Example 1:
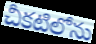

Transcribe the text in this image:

చీకటిలోను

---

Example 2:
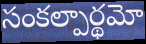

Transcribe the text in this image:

సంకల్పార్థమో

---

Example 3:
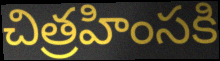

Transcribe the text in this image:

చిత్రహింసకి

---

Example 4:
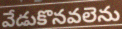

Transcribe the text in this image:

వేడుకొనవలెను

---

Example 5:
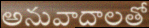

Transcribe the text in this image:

అనువాదాలతో